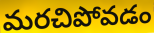
మరచిపోవడం